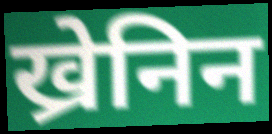
ख्रेनिन